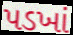
પડખાં